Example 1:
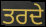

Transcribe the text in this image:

ਤਰਦੇ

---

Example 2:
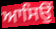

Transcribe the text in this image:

ਆਸਿਉਂ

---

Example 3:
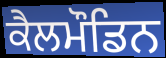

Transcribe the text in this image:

ਕੈਲਮੌਡਿਨ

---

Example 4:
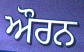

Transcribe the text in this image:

ਔਰਨ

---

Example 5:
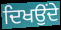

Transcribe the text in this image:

ਦਿਖਉਂਦੇ